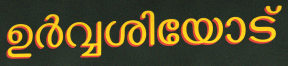
ഉർവ്വശിയോട്